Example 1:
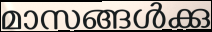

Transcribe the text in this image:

മാസങ്ങൾക്കു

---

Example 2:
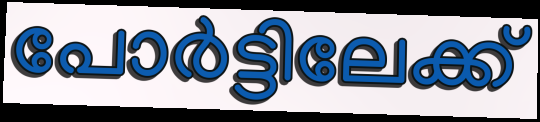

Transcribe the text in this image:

പോർട്ടിലേക്ക്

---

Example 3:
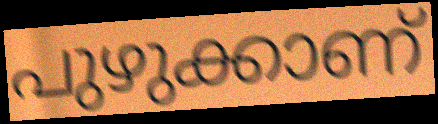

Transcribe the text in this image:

പുഴുക്കാണ്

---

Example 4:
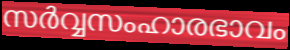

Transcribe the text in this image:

സർവ്വസംഹാരഭാവം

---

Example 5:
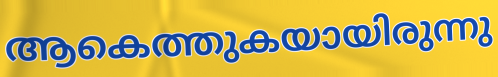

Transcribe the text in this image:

ആകെത്തുകയായിരുന്നു